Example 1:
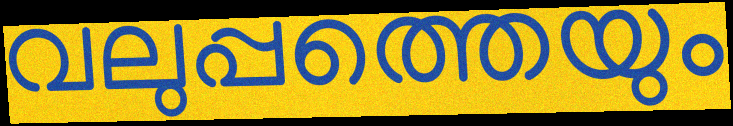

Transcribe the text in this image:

വലുപ്പത്തെയും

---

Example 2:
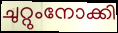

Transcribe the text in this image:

ചുറ്റുംനോക്കി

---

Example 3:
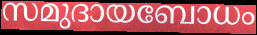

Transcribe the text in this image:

സമുദായബോധം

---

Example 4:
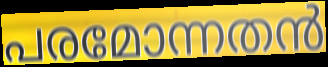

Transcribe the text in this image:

പരമോന്നതൻ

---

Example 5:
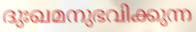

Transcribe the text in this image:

ദുഃഖമനുഭവിക്കുന്ന